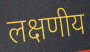
लक्षणीय